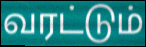
வரட்டும்